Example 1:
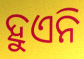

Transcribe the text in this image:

ହୁଏନି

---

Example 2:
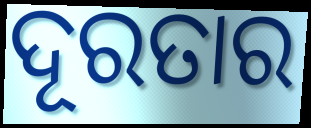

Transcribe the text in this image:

ଦୂରତାର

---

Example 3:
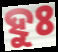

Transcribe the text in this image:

ହୁଃ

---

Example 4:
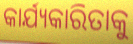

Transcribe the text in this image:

କାର୍ଯ୍ୟକାରିତାକୁ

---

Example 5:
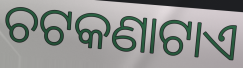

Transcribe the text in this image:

ଚଟକଣାଟାଏ